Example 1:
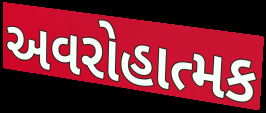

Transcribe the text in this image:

અવરોહાત્મક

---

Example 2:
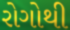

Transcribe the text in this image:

રોગોથી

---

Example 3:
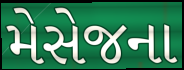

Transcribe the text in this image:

મેસેજના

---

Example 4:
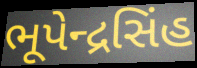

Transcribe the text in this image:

ભૂપેન્દ્રસિંહ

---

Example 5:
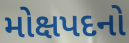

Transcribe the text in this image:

મોક્ષપદનો